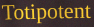
Totipotent